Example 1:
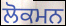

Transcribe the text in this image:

ਲੋਕਮਨ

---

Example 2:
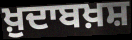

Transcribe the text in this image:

ਖ਼ੁਦਾਬਖ਼ਸ਼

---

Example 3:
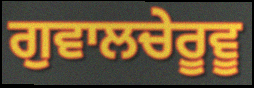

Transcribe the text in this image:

ਗੁਵਾਲਚੇਰੂਵੂ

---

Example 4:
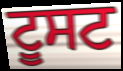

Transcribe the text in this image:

ਟੂਸਟ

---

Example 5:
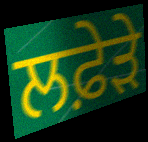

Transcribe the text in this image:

ਲਫ਼ੇੜੇ